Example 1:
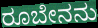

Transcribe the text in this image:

ರೂಬೇನನು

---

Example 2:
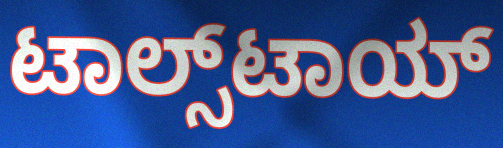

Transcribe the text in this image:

ಟಾಲ್ಸ್‌ಟಾಯ್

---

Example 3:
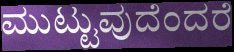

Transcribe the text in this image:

ಮುಟ್ಟುವುದೆಂದರೆ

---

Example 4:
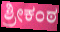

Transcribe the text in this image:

ಶ್ರೀಕಂಠ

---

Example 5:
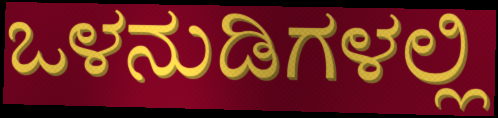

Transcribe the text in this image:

ಒಳನುಡಿಗಳಲ್ಲಿ